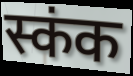
स्कंक